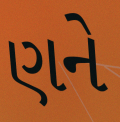
ણને